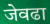
जेवढा